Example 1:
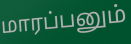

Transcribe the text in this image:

மாரப்பனும்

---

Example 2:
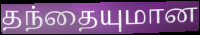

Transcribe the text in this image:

தந்தையுமான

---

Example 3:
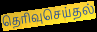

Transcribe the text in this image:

தெரிவுசெய்தல்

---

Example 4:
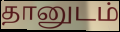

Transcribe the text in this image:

தானுடம்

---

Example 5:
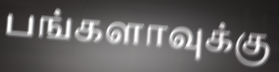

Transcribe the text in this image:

பங்களாவுக்கு